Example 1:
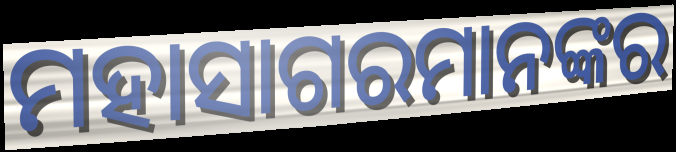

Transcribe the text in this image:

ମହାସାଗରମାନଙ୍କର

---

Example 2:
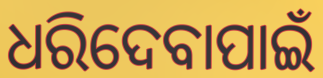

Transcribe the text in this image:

ଧରିଦେବାପାଇଁ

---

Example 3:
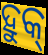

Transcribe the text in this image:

ହୁକ୍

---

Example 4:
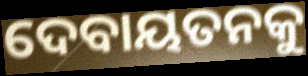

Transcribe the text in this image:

ଦେବାୟତନକୁ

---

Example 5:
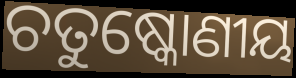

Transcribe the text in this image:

ଚତୁଷ୍କୋଣୀୟ